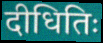
दीधितिः